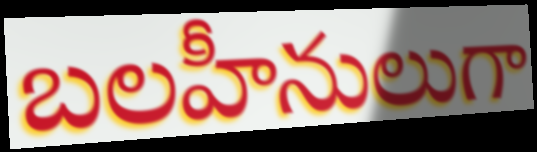
బలహీనులుగా